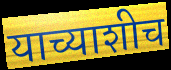
याच्याशीच